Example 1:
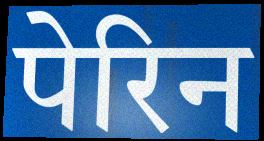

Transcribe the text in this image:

पेरिन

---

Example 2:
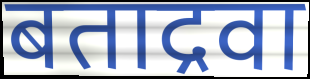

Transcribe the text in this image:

बताद्रवा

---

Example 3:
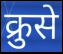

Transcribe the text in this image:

क्रुसे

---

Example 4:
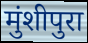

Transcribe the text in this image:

मुंशीपुरा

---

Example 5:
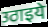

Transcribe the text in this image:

उठाइये